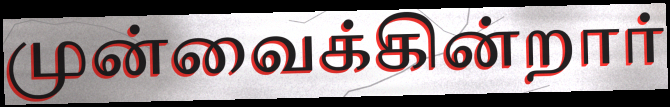
முன்வைக்கின்றார்